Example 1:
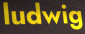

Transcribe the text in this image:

ludwig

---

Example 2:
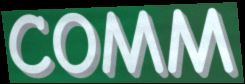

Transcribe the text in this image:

COMM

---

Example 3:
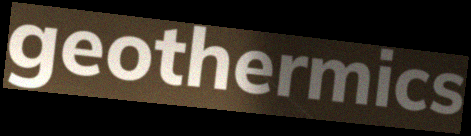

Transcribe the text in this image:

geothermics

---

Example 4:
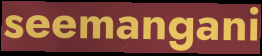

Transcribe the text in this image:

seemangani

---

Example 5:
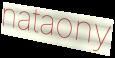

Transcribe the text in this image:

nataony